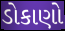
ડોકાણો